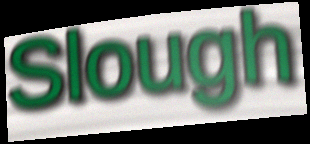
Slough